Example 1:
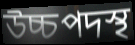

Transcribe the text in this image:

উচ্চপদস্থ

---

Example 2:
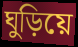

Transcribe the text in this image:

ঘুড়িয়ে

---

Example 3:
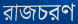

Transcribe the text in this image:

রাজচরণ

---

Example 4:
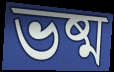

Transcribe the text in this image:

ভষ্ম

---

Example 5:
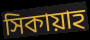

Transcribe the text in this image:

সিকায়াহ